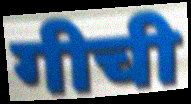
गीची